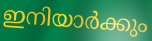
ഇനിയാർക്കും